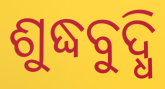
ଶୁଦ୍ଧବୁଦ୍ଧି